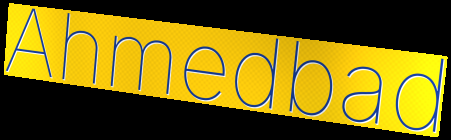
Ahmedbad